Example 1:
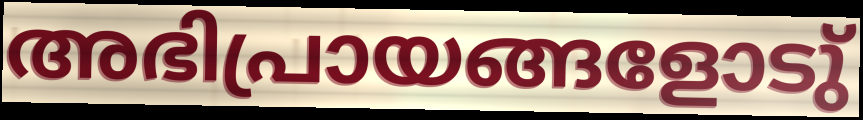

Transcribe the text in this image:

അഭിപ്രായങ്ങളോടു്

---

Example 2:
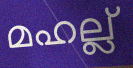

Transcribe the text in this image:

മഹല്ല്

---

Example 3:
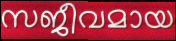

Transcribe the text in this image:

സജീവമായ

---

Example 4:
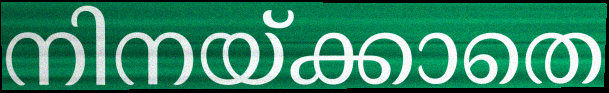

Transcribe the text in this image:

നിനയ്ക്കാതെ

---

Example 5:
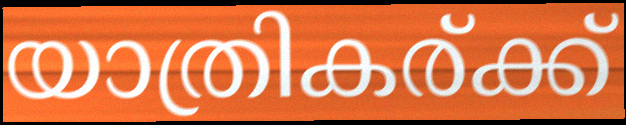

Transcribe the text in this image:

യാത്രികര്ക്ക്